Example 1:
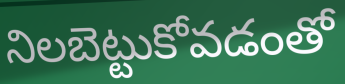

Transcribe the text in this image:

నిలబెట్టుకోవడంతో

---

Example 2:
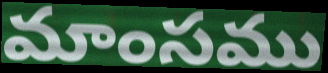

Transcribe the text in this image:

మాంసము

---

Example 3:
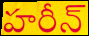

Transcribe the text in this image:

హరీన్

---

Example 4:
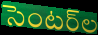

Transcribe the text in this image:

సెంటర్‌ల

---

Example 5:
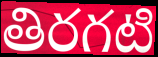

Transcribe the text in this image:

తిరగటి